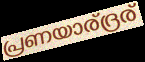
പ്രണയാര്ദ്രര്